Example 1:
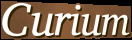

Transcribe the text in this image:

Curium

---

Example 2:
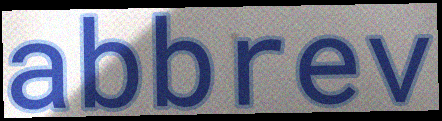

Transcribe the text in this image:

abbrev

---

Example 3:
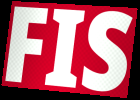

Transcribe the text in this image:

FIS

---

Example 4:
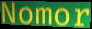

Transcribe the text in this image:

Nomor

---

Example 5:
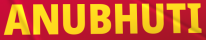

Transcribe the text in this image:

ANUBHUTI